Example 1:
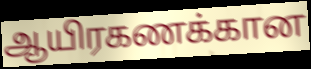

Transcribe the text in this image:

ஆயிரகணக்கான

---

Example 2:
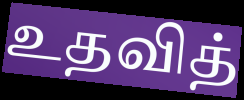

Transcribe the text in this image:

உதவித்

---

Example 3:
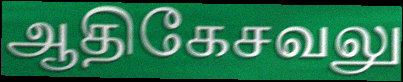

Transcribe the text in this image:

ஆதிகேசவலு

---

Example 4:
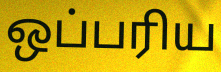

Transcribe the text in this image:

ஒப்பரிய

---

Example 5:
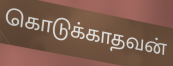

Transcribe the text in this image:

கொடுக்காதவன்